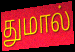
துமால்